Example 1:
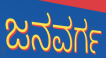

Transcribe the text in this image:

ಜನವರ್ಗ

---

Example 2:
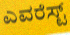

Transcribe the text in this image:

ಎವರೆಸ್ಟ್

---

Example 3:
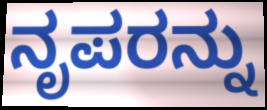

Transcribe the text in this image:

ನೃಪರನ್ನು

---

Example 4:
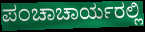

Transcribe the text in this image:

ಪಂಚಾಚಾರ್ಯರಲ್ಲಿ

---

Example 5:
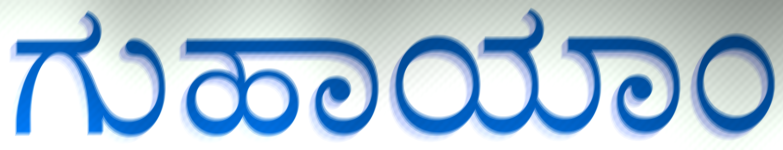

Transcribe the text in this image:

ಗುಹಾಯಾಂ